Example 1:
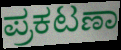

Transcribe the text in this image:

ಪ್ರಕಟಣಾ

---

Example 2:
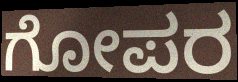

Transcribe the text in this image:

ಗೋಪರ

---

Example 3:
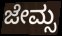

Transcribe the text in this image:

ಜೇಮ್ಸ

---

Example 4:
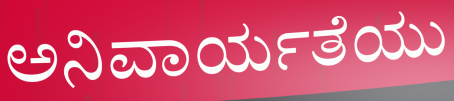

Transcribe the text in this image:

ಅನಿವಾರ್ಯತೆಯು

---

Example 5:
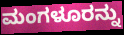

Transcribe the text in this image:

ಮಂಗಳೂರನ್ನು